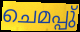
ചെമപ്പു്